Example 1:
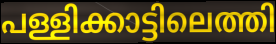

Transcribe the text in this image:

പള്ളിക്കാട്ടിലെത്തി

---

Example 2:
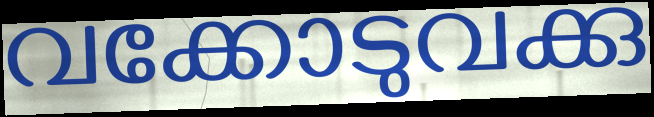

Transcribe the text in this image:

വക്കോടുവക്കു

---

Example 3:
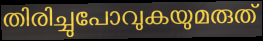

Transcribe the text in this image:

തിരിച്ചുപോവുകയുമരുത്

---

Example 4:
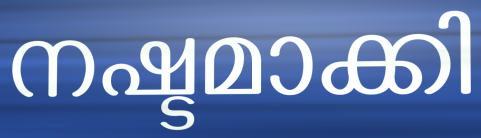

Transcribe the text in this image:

നഷ്ടമാക്കി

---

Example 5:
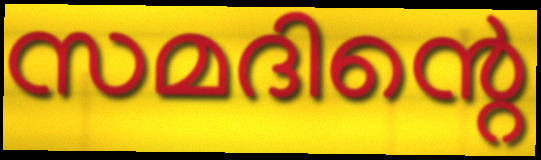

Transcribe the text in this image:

സമദിന്റെ